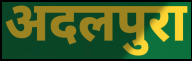
अदलपुरा